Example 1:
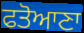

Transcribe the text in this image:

ਫਤੋਆਣਾ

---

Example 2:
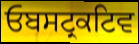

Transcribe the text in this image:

ਓਬਸਟ੍ਰਕਟਿਵ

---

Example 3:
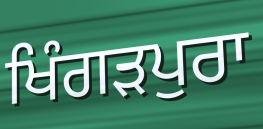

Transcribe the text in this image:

ਖਿੰਗੜਪੁਰਾ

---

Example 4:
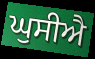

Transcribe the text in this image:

ਘੁਸੀਐ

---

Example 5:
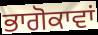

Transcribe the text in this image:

ਭਾਗੋਕਾਵਾਂ